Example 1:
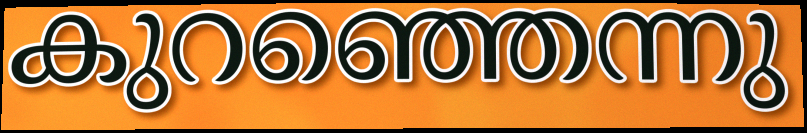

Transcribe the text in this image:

കുറഞ്ഞെന്നു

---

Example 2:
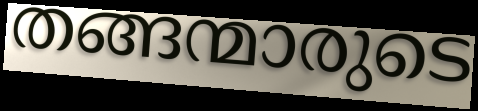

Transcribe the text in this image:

തങ്ങന്മാരുടെ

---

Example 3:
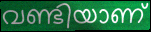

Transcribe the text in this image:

വണ്ടിയാണ്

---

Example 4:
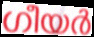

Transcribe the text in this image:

ഗീയർ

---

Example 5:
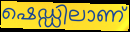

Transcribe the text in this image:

ഷെഡ്ഡിലാണ്